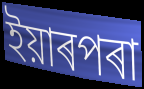
ইয়াৰপৰা